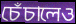
চেঁচালেও